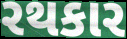
રથકાર